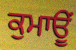
ਕੁਮਾਊਂ